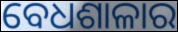
ବେଧଶାଳାର